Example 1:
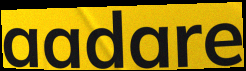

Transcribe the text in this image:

aadare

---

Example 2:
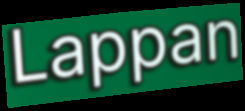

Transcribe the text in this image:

Lappan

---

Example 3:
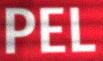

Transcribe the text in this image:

PEL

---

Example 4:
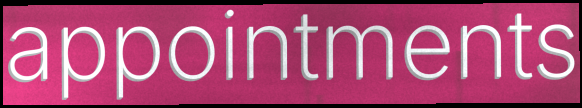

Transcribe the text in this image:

appointments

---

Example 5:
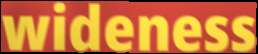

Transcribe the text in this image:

wideness